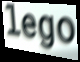
lego